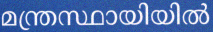
മന്ത്രസ്ഥായിയിൽ